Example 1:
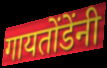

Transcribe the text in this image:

गायतोंडेंनी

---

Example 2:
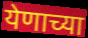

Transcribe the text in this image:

येणाच्या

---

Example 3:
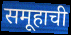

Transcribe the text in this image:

समूहाची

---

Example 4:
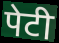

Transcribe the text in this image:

पेटी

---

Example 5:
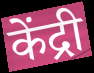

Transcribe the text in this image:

केंद्री